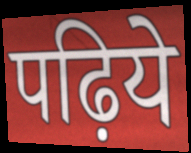
पढ़िये